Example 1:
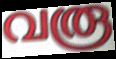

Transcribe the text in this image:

വരൂ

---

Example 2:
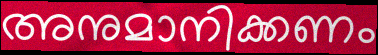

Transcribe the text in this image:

അനുമാനിക്കണം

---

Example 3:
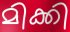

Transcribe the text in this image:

മിക്കി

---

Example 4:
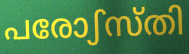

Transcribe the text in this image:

പരോഽസ്തി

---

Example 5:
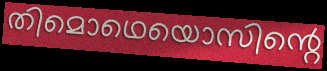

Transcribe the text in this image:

തിമൊഥെയൊസിന്റെ